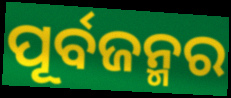
ପୂର୍ବଜନ୍ମର